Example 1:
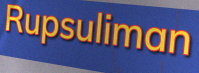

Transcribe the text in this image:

Rupsuliman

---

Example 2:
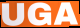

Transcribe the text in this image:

UGA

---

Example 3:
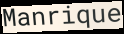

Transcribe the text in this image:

Manrique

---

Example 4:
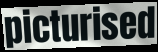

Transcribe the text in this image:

picturised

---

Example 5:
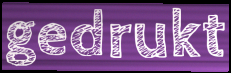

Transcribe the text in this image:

gedrukt